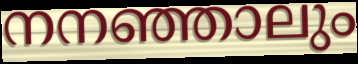
നനഞ്ഞാലും